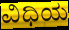
ವಿಧಿಯ